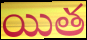
యిత